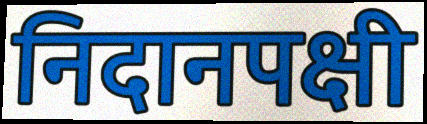
निदानपक्षी